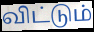
விட்டும்